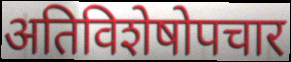
अतिविशेषोपचार